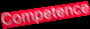
Competence